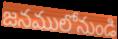
జనములోనుండి